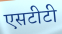
एसटीटी